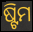
ଷ୍ଟିମ